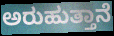
ಅರುಹುತ್ತಾನೆ